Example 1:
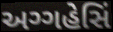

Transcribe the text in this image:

અગ્ગહેસિં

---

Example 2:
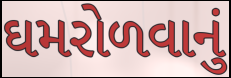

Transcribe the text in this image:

ઘમરોળવાનું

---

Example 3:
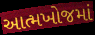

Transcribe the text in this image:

આત્મખોજમાં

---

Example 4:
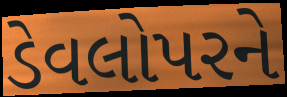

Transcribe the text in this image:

ડેવલોપરને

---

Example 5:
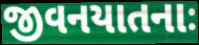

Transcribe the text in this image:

જીવનયાતનાઃ